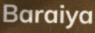
Baraiya